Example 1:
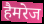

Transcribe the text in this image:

हैमरेज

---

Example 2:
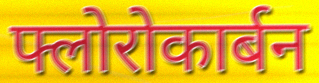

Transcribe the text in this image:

फ्लोरोकार्बन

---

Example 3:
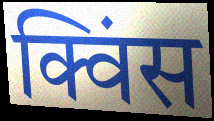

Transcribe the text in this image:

क्विंस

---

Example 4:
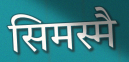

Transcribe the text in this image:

सिमस्मै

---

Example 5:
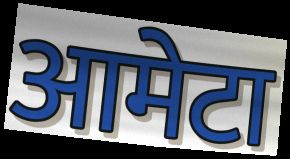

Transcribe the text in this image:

आमेटा